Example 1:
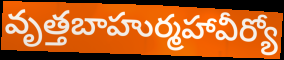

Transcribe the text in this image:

వృత్తబాహుర్మహావీర్యో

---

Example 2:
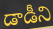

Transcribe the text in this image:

డాడీని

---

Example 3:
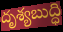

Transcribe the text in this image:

దృశ్యబుద్ధి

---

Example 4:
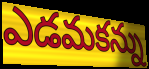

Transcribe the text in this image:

ఎడమకన్ను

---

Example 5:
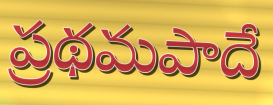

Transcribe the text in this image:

ప్రథమపాదే